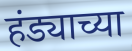
हंड्याच्या